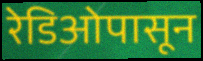
रेडिओपासून